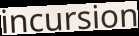
incursion